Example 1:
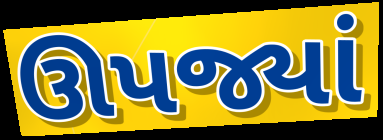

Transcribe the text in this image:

ઊપજ્યાં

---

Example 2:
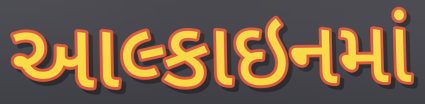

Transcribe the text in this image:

આલ્કાઇનમાં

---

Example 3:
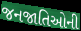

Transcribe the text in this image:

જનજાતિઓની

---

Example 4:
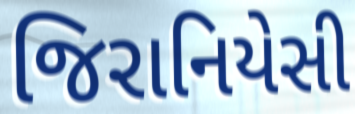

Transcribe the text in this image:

જિરાનિયેસી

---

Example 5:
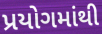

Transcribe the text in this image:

પ્રયોગમાંથી